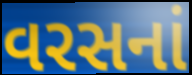
વરસનાં